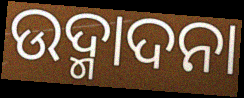
ଉଦ୍ମାଦନା